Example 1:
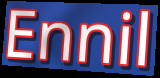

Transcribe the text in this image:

Ennil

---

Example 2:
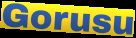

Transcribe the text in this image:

Gorusu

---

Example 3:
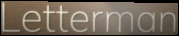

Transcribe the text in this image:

Letterman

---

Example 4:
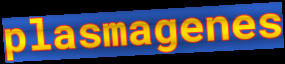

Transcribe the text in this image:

plasmagenes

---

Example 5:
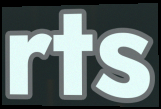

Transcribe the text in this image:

rts